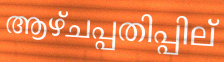
ആഴ്ചപ്പതിപ്പില്